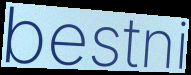
bestni